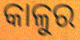
କାଳୁର